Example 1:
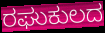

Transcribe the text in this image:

ರಘುಕುಲದ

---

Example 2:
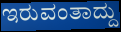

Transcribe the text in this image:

ಇರುವಂತಾದ್ದು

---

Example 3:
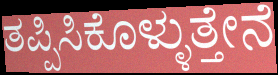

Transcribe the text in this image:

ತಪ್ಪಿಸಿಕೊಳ್ಳುತ್ತೇನೆ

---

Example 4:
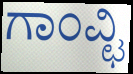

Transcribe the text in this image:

ಗಾಂವ್ಟಿ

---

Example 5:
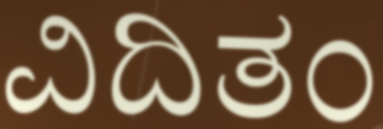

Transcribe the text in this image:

ವಿದಿತಂ